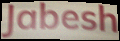
Jabesh